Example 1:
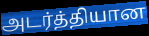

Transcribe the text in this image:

அடர்த்தியான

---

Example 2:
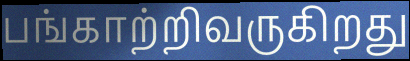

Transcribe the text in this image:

பங்காற்றிவருகிறது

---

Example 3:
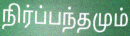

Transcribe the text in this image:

நிர்ப்பந்தமும்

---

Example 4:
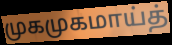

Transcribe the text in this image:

முகமுகமாய்த்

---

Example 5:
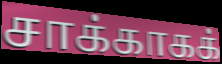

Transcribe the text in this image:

சாக்காகக்